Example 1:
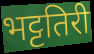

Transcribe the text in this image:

भट्टतिरी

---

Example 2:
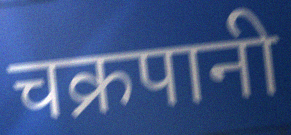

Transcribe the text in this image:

चक्रपानी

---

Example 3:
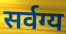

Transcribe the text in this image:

सर्वग्य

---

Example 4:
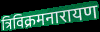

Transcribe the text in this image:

त्रिविक्रमनारायण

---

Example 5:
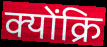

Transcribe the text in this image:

क्योंक्रि